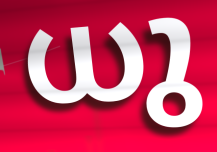
ധു